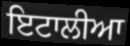
ਇਟਾਲੀਆ